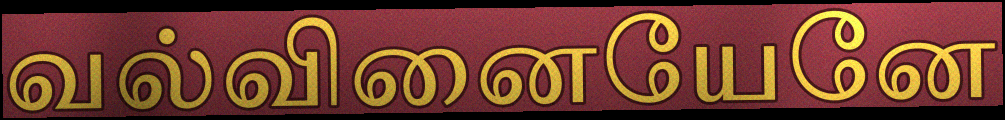
வல்வினையேனே